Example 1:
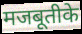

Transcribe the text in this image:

मजबूतीके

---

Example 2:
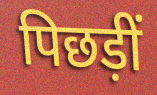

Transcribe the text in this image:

पिछड़ीं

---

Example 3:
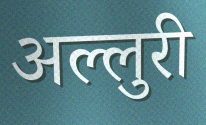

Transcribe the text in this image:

अल्लुरी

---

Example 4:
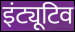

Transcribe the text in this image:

इंट्यूटिव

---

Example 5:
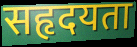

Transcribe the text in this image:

सहृदयता